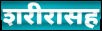
शरीरासह